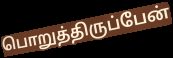
பொறுத்திருப்பேன்